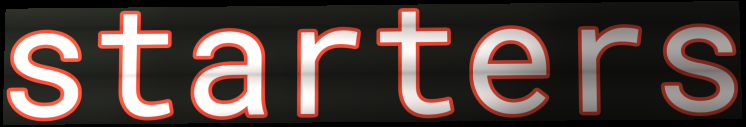
starters